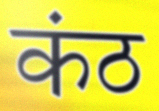
कंठ